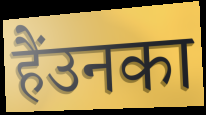
हैंउनका